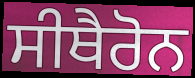
ਸੀਥੈਰੋਨ